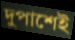
দুপাশেই